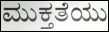
ಮುಕ್ತತೆಯು